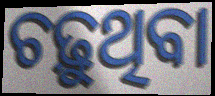
ଚଢ଼ୁଥିବା